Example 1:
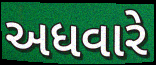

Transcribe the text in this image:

અધવારે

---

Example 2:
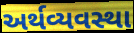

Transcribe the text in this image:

અર્થવ્યવસ્થા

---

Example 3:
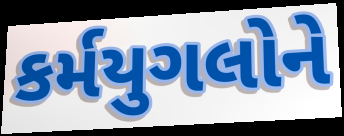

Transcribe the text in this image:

કર્મયુગલોને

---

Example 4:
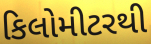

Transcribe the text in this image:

કિલોમીટરથી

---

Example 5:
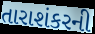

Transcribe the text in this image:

તારાશંકરની